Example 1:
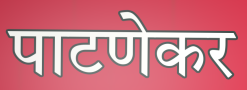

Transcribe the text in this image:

पाटणेकर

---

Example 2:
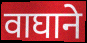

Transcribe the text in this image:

वाघाने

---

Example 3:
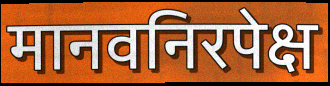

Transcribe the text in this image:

मानवनिरपेक्ष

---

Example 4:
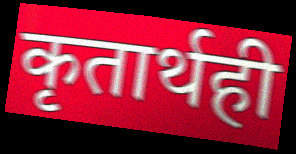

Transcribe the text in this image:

कृतार्थही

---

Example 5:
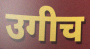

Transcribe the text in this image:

उगीच